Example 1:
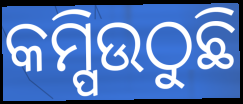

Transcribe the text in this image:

କମ୍ପିଉଠୁଛି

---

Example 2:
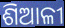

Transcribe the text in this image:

ଶିଆଳୀ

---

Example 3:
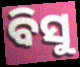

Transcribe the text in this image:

ବିସୁ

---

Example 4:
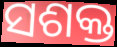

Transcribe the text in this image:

ସଶକ୍ତ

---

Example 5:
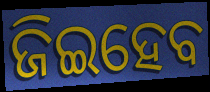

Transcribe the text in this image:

ଜିଇହେବ